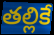
తల్లికే